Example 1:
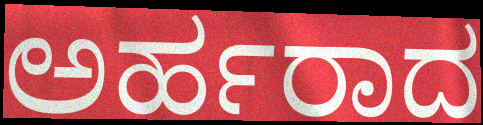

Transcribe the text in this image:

ಅರ್ಹರಾದ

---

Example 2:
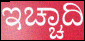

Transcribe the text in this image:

ಇಚ್ಚಾದಿ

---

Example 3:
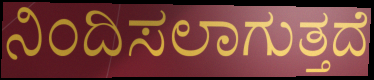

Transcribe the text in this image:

ನಿಂದಿಸಲಾಗುತ್ತದೆ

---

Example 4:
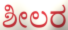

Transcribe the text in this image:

ಶೀಲರ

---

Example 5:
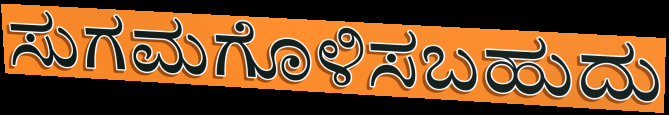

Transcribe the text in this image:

ಸುಗಮಗೊಳಿಸಬಹುದು